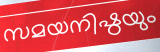
സമയനിഷ്ഠയും